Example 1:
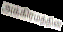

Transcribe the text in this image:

அக்கிரமத்தின்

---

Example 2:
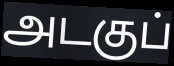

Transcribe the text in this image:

அடகுப்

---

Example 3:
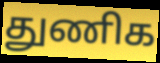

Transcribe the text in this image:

துணிக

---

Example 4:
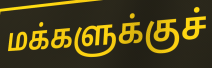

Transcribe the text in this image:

மக்களுக்குச்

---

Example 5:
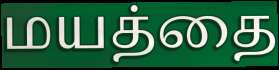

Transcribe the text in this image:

மயத்தை